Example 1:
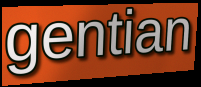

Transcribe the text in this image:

gentian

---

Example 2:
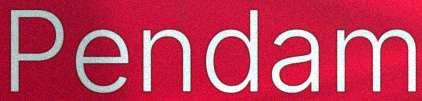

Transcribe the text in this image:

Pendam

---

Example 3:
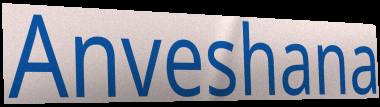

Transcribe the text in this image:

Anveshana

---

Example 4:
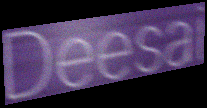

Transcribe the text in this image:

Deesai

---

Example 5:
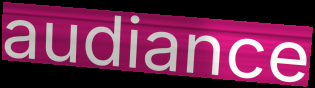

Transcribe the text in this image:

audiance